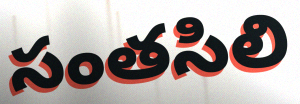
సంతసిలి